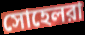
সোহেলরা